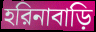
হরিনাবাড়ি